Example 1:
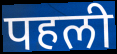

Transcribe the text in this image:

पहली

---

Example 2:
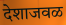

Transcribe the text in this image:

देशाजवळ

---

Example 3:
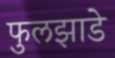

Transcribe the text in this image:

फुलझाडे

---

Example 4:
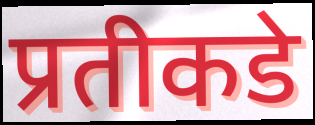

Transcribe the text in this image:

प्रतीकडे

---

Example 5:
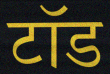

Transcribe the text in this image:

टॉड